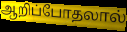
ஆறிப்போதலால்